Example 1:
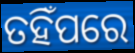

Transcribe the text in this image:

ତହିଁପରେ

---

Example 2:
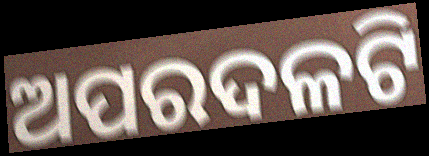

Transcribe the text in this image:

ଅପରଦଳଟି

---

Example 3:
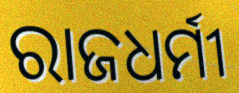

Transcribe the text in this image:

ରାଜଧର୍ମୀ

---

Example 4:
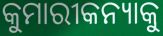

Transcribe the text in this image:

କୁମାରୀକନ୍ୟାକୁ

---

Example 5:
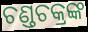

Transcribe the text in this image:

ଚଣ୍ଡଚକ୍ରଙ୍କ